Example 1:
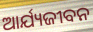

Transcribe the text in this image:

ଆର୍ଯ୍ୟଜୀବନ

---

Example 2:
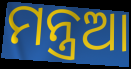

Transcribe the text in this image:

ମନ୍ତ୍ରଆ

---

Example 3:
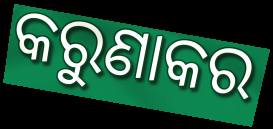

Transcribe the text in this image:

କରୁଣାକର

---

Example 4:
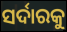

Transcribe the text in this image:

ସର୍ଦାରକୁ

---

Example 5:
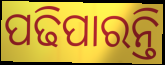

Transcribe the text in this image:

ପଢିପାରନ୍ତି